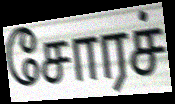
சோரச்